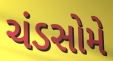
ચંડસોમે